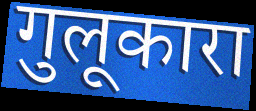
गुलूकारा